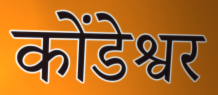
कोंडेश्वर